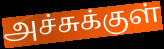
அச்சுக்குள்